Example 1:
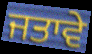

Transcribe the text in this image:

ਜਤਾਵੇ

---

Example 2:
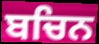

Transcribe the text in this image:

ਬਚਿਨ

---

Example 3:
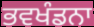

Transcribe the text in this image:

ਭਵਖੰਡਨਾ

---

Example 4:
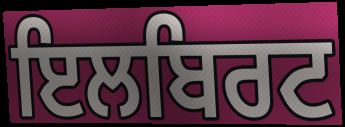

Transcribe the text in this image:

ਇਲਬਿਰਟ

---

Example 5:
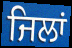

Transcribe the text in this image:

ਜਿਲਾਂ